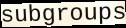
subgroups